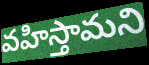
వహిస్తామని